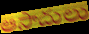
ఆసాదులు